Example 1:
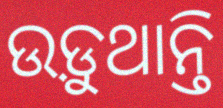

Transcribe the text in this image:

ଉଡ଼ୁଥାନ୍ତି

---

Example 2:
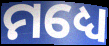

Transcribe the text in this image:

ମଧ୍ୟେ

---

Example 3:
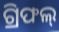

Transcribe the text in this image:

ଗ୍ରିଫଲ୍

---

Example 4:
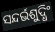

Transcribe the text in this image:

ସନ୍ଦର୍ଭଶୁଦ୍ଧିଂ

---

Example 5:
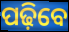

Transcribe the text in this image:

ପଢ଼ିବେ